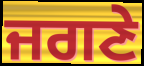
ਜਗਣੇ